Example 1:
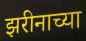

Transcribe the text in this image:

झरीनाच्या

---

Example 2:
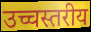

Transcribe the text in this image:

उच्चस्तरीय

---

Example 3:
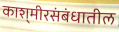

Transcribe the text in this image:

काश्मीरसंबंधातील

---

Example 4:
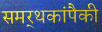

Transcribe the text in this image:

समर्थकांपैकी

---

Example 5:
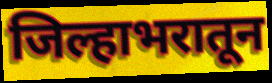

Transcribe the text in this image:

जिल्हाभरातून